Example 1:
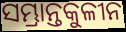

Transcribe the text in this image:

ସମ୍ଭ୍ରାନ୍ତକୁଳୀନ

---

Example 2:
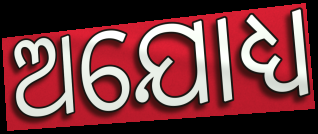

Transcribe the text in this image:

ଅଯୋଧ୍ୟ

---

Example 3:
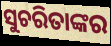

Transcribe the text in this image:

ସୁଚରିତାଙ୍କର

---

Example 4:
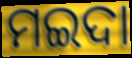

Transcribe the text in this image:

ମଇଦା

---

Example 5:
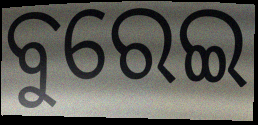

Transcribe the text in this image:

ବୁରେଇ